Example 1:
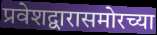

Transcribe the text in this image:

प्रवेशद्वारासमोरच्या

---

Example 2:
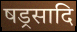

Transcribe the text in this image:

षड्रसादि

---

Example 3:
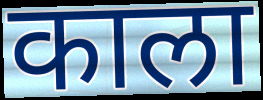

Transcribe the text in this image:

काला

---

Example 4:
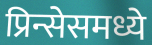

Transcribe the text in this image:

प्रिन्सेसमध्ये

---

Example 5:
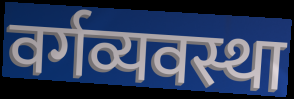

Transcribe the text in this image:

वर्गव्यवस्था